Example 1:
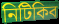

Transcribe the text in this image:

নিটিকিব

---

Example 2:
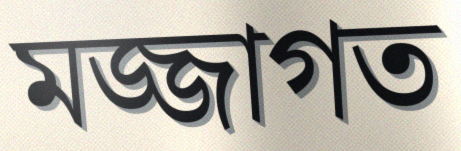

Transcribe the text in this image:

মজ্জাগত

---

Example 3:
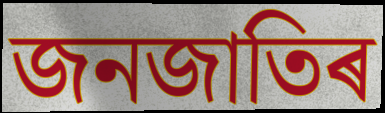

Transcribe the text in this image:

জনজাতিৰ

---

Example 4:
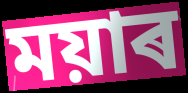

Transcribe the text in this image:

ময়াৰ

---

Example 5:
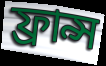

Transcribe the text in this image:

ফ্ৰান্স